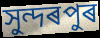
সুন্দৰপুৰ